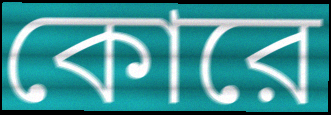
কোরে